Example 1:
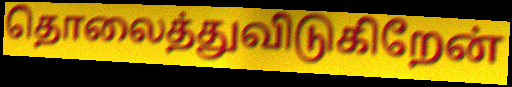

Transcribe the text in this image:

தொலைத்துவிடுகிறேன்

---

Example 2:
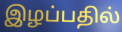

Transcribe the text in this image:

இழப்பதில்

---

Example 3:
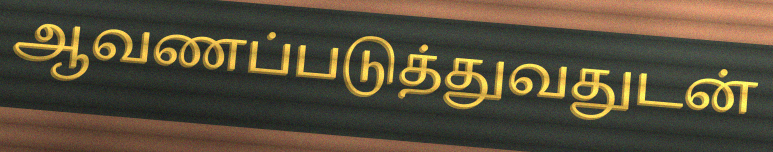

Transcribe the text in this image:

ஆவணப்படுத்துவதுடன்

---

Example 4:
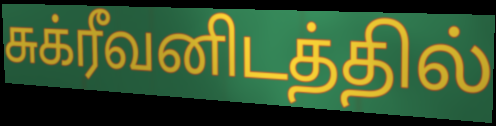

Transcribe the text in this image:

சுக்ரீவனிடத்தில்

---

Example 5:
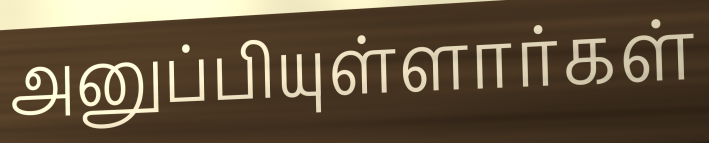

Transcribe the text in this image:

அனுப்பியுள்ளார்கள்